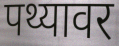
पथ्यावर